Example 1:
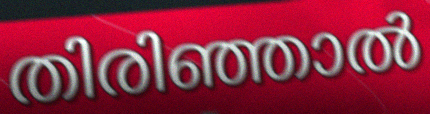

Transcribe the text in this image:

തിരിഞ്ഞാൽ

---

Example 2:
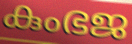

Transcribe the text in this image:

കുംഭജ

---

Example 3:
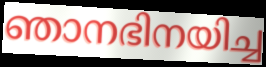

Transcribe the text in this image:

ഞാനഭിനയിച്ച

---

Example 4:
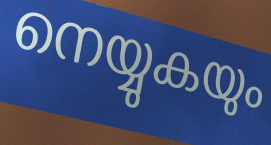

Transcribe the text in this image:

നെയ്യുകയും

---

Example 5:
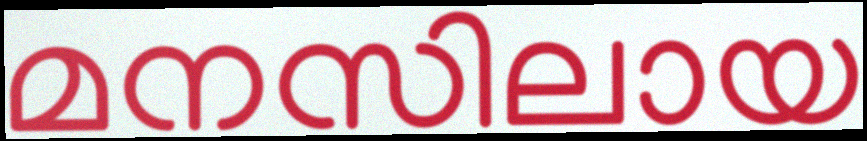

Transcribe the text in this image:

മനസിലായ